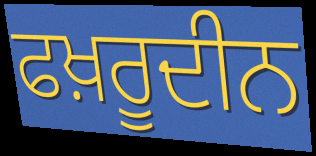
ਫਖ਼ਰੂਦੀਨ